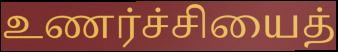
உணர்ச்சியைத்